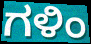
ಗಳಿಂ